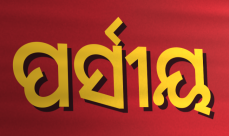
ପର୍ସୀୟ